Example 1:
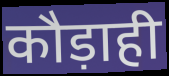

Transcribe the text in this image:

कौड़ाही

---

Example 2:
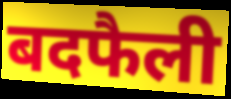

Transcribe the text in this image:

बदफैली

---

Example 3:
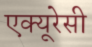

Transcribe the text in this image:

एक्यूरेसी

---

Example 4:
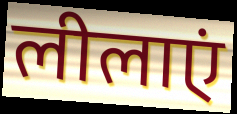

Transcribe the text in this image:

लीलाएं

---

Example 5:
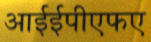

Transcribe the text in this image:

आईईपीएफए